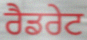
ਰੈਡਰੇਟ